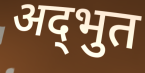
अद्‌भुत